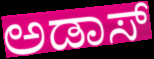
ಅಡಾಸ್